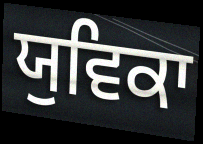
ਯੁਵਿਕਾ